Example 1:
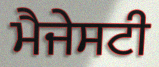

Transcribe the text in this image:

ਮੈਜੇਸਟੀ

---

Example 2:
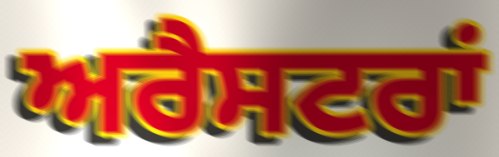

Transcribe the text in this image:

ਅਰੈਸਟਰਾਂ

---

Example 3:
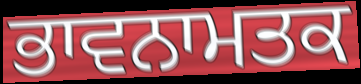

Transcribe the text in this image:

ਭਾਵਨਾਮਤਕ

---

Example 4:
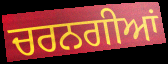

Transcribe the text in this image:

ਚਰਨਗੀਆਂ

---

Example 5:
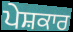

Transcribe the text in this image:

ਪੇਸ਼ਕਾਰ